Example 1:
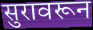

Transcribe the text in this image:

सुरावरून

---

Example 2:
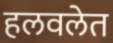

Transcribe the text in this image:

हलवलेत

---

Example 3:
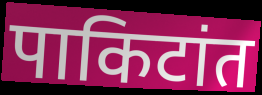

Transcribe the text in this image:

पाकिटांत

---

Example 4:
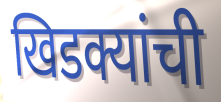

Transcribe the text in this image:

खिडक्यांची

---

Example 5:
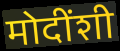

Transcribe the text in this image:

मोदींशी